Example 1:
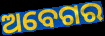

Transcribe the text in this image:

ଅବେଗର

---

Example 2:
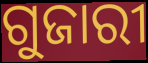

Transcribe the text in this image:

ଗୁଜାରୀ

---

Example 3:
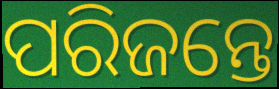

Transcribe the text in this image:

ପରିଜନ୍ତେ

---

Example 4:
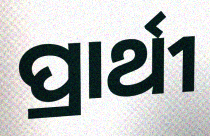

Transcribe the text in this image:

ପ୍ରାର୍ଥୀ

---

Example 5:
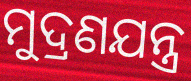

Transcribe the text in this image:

ମୁଦ୍ରଣଯନ୍ତ୍ର